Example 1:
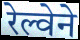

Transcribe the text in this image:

रेल्वेने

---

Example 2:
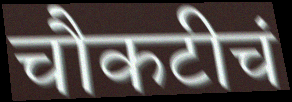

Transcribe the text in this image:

चौकटीचं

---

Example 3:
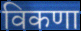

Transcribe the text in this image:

विकणा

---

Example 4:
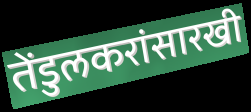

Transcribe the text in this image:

तेंडुलकरांसारखी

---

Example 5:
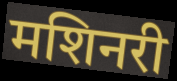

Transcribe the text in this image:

मशिनरी